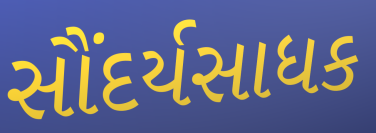
સૌંદર્યસાધક